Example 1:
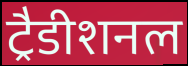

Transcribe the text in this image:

ट्रैडीशनल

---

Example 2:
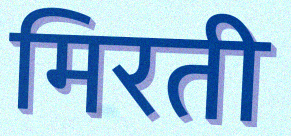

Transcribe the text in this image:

मिरती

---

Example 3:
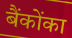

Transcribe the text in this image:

बैंकोंका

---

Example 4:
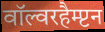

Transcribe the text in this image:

वॉल्वरहैम्प्टन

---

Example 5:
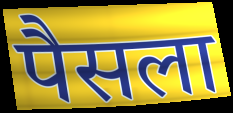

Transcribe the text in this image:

पैसला